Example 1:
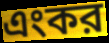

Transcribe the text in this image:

এংকর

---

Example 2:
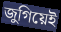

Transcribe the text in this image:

জুগিয়েই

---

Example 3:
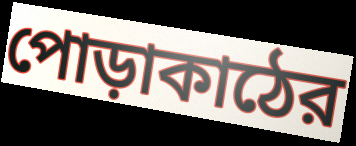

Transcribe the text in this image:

পোড়াকাঠের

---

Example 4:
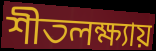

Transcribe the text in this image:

শীতলক্ষ্যায়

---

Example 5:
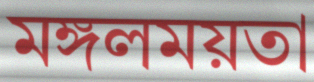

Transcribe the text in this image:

মঙ্গলময়তা